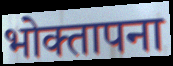
भोक्तापना